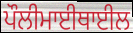
ਪੌਲੀਮਾਈਥਾਈਲ